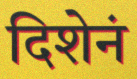
दिशेनं